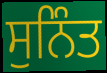
ਸੁਨਿੰਤ